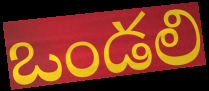
ఒండలి